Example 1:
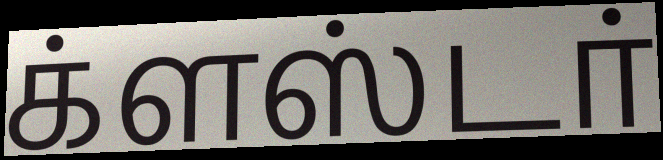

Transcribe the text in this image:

க்ளஸ்டர்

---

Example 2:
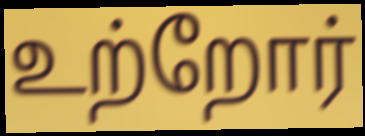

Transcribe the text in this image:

உற்றோர்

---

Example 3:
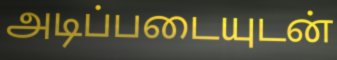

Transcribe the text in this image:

அடிப்படையுடன்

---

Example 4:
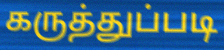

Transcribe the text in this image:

கருத்துப்படி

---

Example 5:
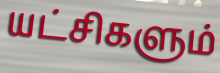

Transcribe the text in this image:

யட்சிகளும்